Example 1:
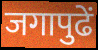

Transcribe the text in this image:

जगापुढें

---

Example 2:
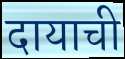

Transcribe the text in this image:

दायाची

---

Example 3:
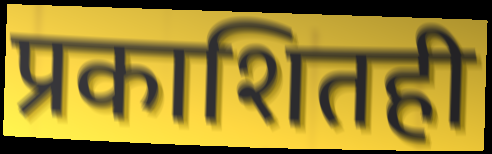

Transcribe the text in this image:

प्रकाशितही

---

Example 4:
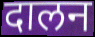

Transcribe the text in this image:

दालन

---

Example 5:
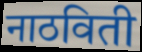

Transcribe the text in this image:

नाठविती